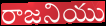
రాజనియు